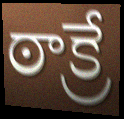
ఠాక్రే